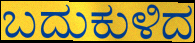
ಬದುಕುಳಿದ